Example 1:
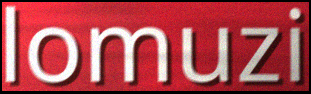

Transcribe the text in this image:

lomuzi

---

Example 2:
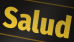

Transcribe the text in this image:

Salud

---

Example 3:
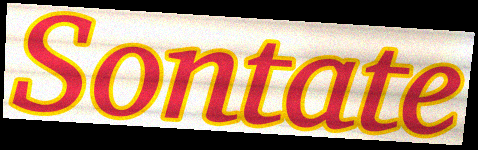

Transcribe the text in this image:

Sontate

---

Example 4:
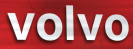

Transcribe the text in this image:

volvo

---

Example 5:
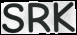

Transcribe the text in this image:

SRK